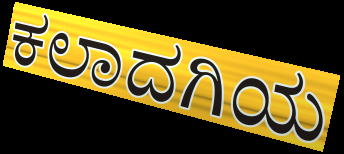
ಕಲಾದಗಿಯ